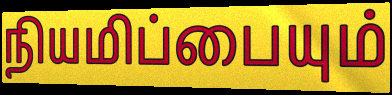
நியமிப்பையும்